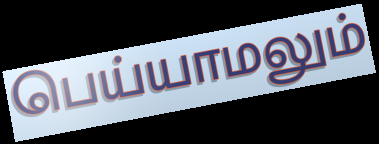
பெய்யாமலும்